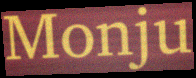
Monju